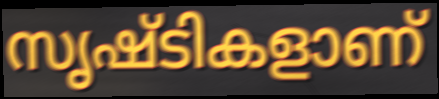
സൃഷ്ടികളാണ്